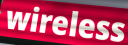
wireless